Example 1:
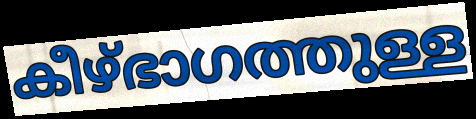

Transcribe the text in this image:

കീഴ്ഭാഗത്തുള്ള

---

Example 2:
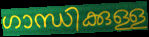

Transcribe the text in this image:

ഗാന്ധിക്കുള്ള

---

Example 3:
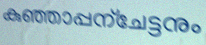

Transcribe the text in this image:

കുഞ്ഞാപ്പന്ചേട്ടനും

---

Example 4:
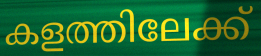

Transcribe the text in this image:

കളത്തിലേക്ക്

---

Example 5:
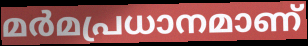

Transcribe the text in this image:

മർമപ്രധാനമാണ്